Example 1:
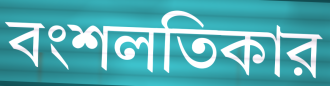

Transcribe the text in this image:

বংশলতিকার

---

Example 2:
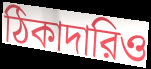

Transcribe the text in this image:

ঠিকাদারিও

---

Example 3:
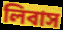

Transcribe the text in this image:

লিবাস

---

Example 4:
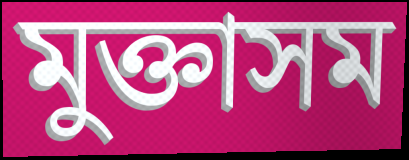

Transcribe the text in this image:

মুক্তাসম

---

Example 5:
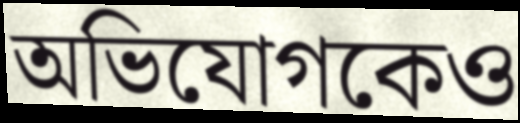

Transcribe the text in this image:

অভিযোগকেও